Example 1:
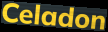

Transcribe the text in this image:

Celadon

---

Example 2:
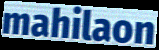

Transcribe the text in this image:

mahilaon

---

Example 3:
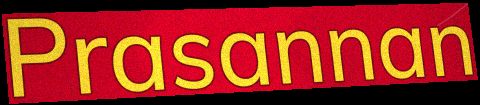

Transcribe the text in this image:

Prasannan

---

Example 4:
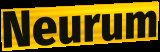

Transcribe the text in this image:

Neurum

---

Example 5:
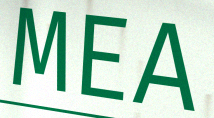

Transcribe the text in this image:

MEA